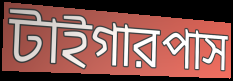
টাইগারপাস